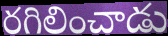
రగిలించాడు